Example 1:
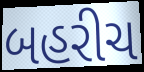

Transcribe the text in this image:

બહરીચ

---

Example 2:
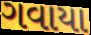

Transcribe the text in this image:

ગવાયા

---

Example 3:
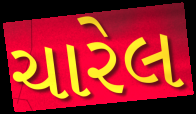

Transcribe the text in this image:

ચારેલ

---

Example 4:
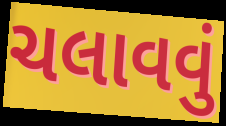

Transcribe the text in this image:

ચલાવવું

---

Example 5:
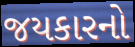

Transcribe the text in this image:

જયકારનો